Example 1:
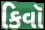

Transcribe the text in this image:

કિવૉ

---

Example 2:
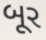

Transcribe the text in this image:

બૂર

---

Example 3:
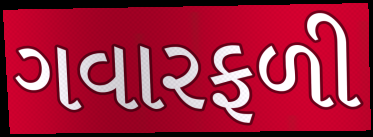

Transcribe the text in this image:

ગવારફળી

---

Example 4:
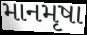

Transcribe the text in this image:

માનમૃષા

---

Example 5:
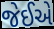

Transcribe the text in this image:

જેઈએ